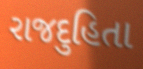
રાજદુહિતા